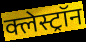
क्लेस्ट्रॉन